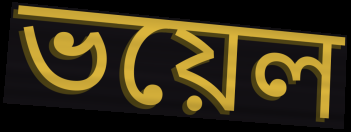
ভয়েল